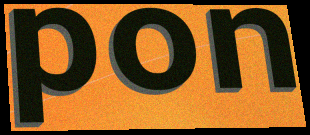
pon